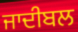
ਜਾਦੀਬਲ